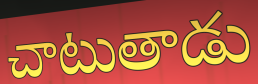
చాటుతాడు